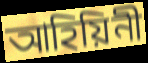
আহিয়িনী